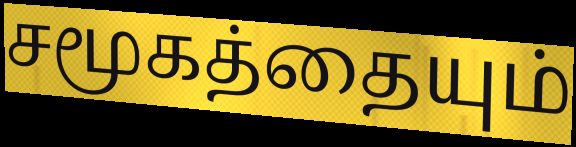
சமூகத்தையும்